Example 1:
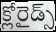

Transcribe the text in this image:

క్లోరైడ్స్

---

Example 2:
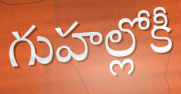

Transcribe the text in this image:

గుహల్లోకీ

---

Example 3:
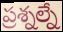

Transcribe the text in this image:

ప్రశ్నల్నే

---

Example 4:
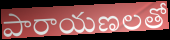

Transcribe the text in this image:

పారాయణలతో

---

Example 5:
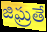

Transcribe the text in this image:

జిఘ్రతే